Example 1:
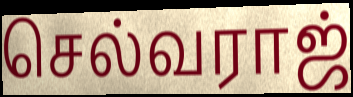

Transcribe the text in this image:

செல்வராஜ்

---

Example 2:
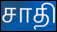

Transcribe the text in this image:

சாதி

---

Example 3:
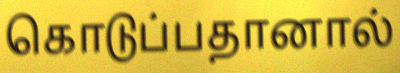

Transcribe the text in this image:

கொடுப்பதானால்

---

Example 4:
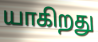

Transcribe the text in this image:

யாகிறது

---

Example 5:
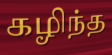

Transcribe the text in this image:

கழிந்த